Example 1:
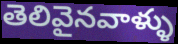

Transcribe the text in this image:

తెలివైనవాళ్ళు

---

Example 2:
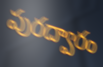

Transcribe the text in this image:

పురద్వారం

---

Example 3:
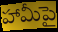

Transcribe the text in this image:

హామీపై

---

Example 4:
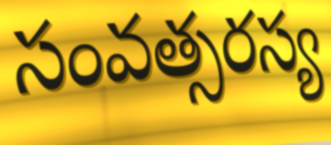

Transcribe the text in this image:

సంవత్సరస్య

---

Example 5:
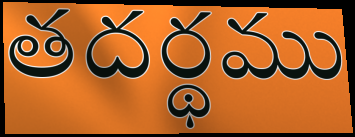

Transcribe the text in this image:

తదర్థము